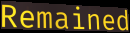
Remained